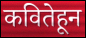
कवितेहून